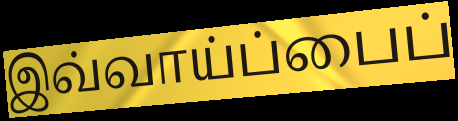
இவ்வாய்ப்பைப்